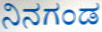
ನಿನಗಂಡ